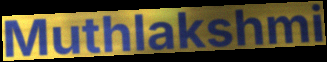
Muthlakshmi